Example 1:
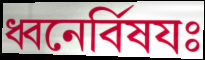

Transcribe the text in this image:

ধ্বনের্বিষযঃ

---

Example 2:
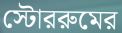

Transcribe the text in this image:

স্টোররুমের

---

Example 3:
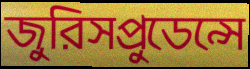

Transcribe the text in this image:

জুরিসপ্রুডেন্সে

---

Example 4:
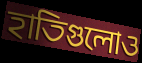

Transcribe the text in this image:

হাতিগুলোও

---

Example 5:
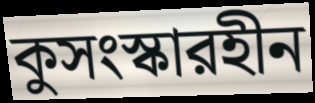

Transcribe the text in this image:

কুসংস্কারহীন